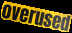
overused